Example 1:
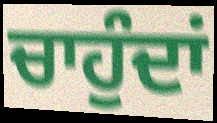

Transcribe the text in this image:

ਚਾਹੁੰਦਾਂ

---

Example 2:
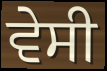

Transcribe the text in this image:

ਵੇਸੀ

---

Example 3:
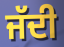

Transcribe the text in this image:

ਜੱਦੀ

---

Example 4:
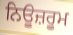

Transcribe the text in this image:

ਨਿਊਜ਼ਰੂਮ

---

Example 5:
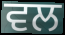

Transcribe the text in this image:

ਵਲ